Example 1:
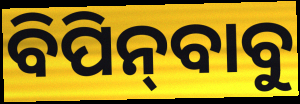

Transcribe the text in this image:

ବିପିନ୍‍ବାବୁ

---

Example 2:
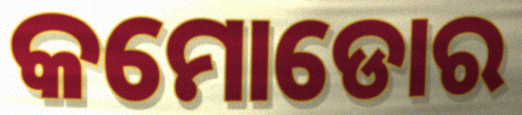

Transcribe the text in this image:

କମୋଡୋର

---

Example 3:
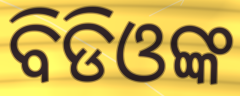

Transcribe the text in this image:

ବିଡିଓଙ୍କ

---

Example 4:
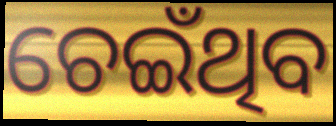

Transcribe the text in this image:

ଚେଇଁଥିବ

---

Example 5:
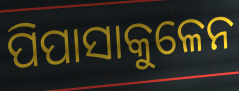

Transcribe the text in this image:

ପିପାସାକୁଳେନ